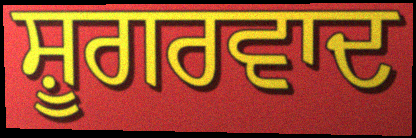
ਸ਼ੂਗਰਵਾਦ